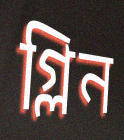
গ্লিন